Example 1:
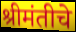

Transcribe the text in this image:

श्रीमंतीचे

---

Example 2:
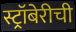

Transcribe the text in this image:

स्ट्रॉबेरीची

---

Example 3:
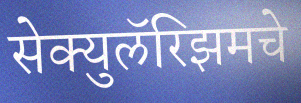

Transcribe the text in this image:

सेक्युलॅरिझमचे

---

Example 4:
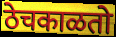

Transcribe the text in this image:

ठेचकाळतो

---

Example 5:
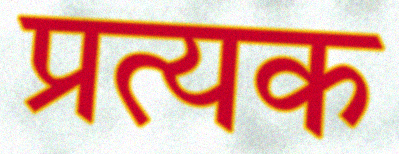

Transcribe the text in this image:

प्रत्यक